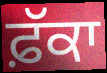
ਫ਼ੱਕਾ